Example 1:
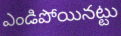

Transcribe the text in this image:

ఎండిపోయినట్టు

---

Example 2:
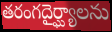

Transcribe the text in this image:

తరంగదైర్ఘ్యాలను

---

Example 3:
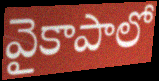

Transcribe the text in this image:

వైకాపాలో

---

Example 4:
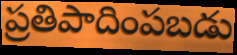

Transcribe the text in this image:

ప్రతిపాదింపబడు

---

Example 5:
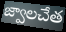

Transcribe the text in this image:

జ్వాలచేత